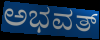
ಅಭವತ್